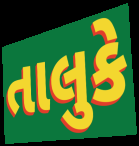
તાલુકે